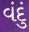
વંદું